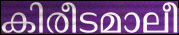
കിരീടമാലീ